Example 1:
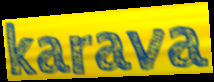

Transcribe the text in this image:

karava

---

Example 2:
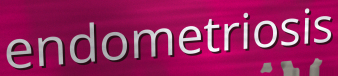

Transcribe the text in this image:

endometriosis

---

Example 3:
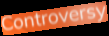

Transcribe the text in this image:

Controversy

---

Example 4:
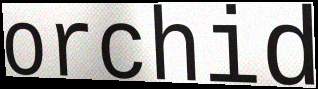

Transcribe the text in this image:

orchid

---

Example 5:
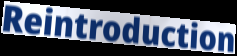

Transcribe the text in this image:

Reintroduction